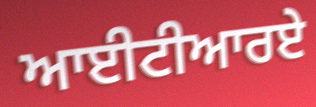
ਆਈਟੀਆਰਏ